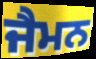
ਜੈਮਨ